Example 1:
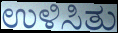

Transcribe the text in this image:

ಉಳಿಸಿತು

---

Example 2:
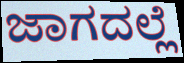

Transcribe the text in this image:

ಜಾಗದಲ್ಲೆ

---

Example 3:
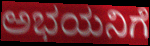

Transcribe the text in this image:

ಅಭಯನಿಗೆ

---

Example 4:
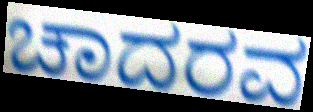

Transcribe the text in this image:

ಚಾದರವ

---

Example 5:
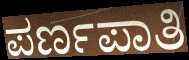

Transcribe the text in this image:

ಪರ್ಣಪಾತಿ